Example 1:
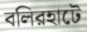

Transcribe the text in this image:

বলিরহাটে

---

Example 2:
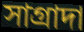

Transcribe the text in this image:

সাগ্রাদা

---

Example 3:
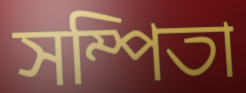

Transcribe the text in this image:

সম্পিতা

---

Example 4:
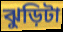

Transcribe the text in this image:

ঝুড়িটা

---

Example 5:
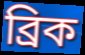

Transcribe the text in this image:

ব্রিক